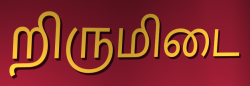
றிருமிடை